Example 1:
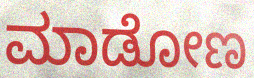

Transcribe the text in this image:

ಮಾಡೋಣ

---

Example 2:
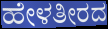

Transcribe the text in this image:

ಹೇಳತೀರದ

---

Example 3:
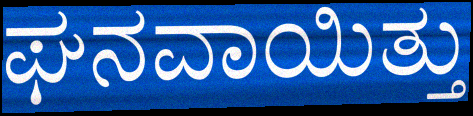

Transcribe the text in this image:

ಘನವಾಯಿತ್ತು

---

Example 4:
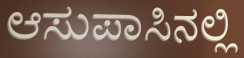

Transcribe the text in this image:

ಆಸುಪಾಸಿನಲ್ಲಿ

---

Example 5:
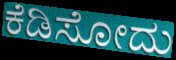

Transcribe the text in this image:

ಕೆಡಿಸೋದು